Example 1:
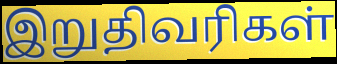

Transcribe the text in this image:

இறுதிவரிகள்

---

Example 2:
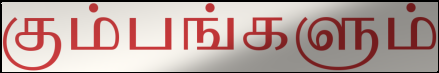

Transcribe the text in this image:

கும்பங்களும்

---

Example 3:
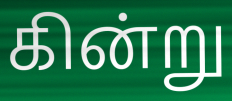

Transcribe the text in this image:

கின்று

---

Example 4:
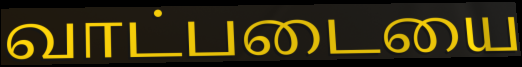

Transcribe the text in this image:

வாட்படையை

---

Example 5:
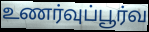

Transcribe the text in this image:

உணர்வுப்பூர்வ